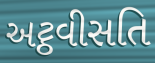
અટ્ઠવીસતિ